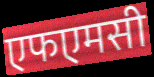
एफएमसी